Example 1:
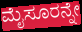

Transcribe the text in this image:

ಮೈಸೂರನ್ನೇ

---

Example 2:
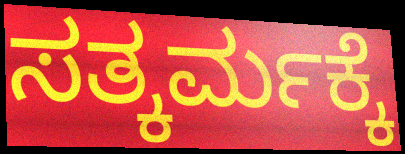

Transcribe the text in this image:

ಸತ್ಕರ್ಮಕ್ಕೆ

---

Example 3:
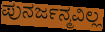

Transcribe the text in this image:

ಪುನರ್ಜನ್ಮವಿಲ್ಲ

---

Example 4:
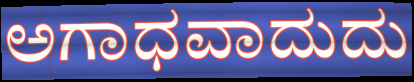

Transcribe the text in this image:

ಅಗಾಧವಾದುದು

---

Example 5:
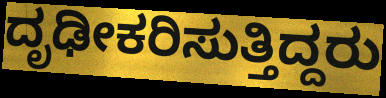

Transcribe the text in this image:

ದೃಢೀಕರಿಸುತ್ತಿದ್ದರು